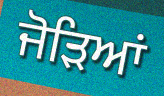
ਜੋੜਿਆਂ